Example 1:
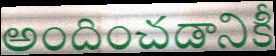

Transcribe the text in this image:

అందించడానికీ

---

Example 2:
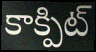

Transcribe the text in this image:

కాక్పిట్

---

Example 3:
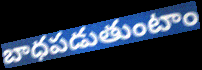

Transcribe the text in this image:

బాధపడుతుంటాం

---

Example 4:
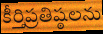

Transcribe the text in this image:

కీర్తిప్రతిష్ఠలను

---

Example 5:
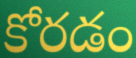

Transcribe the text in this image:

కోరడం